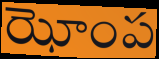
ఝోంప